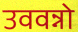
उववन्नो